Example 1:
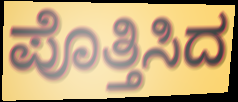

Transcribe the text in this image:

ಪೊತ್ತಿಸಿದ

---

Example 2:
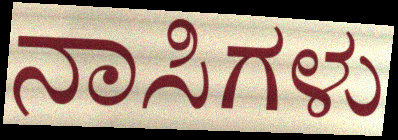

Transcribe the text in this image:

ನಾಸಿಗಳು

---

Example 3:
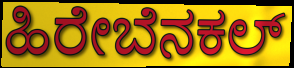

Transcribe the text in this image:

ಹಿರೇಬೆನಕಲ್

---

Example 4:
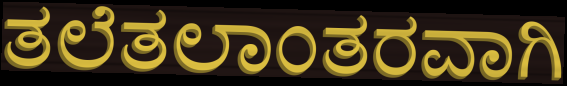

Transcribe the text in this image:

ತಲೆತಲಾಂತರವಾಗಿ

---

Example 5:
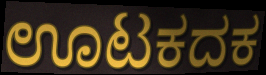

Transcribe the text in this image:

ಊಟಕದಕ